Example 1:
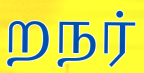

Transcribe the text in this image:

றநர்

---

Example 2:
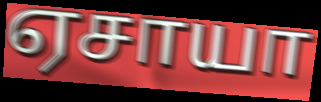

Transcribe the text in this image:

ஏசாயா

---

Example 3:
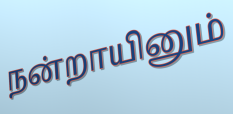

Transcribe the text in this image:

நன்றாயினும்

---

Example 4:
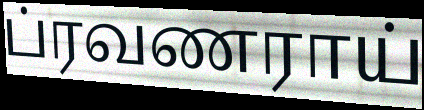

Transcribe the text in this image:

ப்ரவணராய்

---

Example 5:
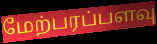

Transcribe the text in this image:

மேற்பரப்பளவு